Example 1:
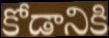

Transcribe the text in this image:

కోడానికి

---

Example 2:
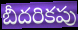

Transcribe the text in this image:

బీదరికపు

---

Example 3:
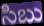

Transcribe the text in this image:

సిబు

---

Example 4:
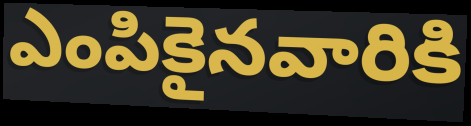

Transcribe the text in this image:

ఎంపికైనవారికి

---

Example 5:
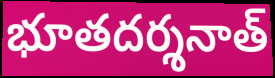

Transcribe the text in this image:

భూతదర్శనాత్